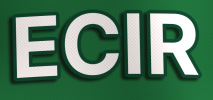
ECIR